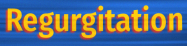
Regurgitation